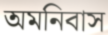
অমনিবাস